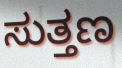
ಸುತ್ತಣ